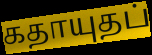
கதாயுதப்